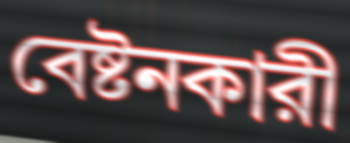
বেষ্টনকারী